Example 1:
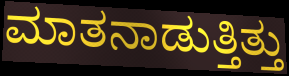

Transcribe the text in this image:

ಮಾತನಾಡುತ್ತಿತ್ತು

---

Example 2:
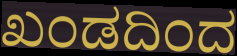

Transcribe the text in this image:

ಖಂಡದಿಂದ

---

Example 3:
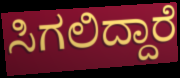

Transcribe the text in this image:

ಸಿಗಲಿದ್ದಾರೆ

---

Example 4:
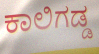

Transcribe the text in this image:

ಕಾಲಿಗಡ್ಡ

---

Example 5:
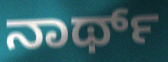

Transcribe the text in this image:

ನಾರ್ಥ್